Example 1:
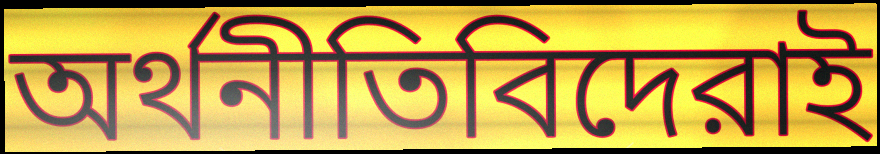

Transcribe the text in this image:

অর্থনীতিবিদেরাই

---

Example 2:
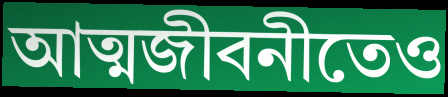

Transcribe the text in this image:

আত্মজীবনীতেও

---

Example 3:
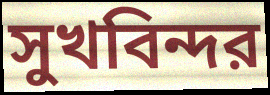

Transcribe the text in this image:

সুখবিন্দর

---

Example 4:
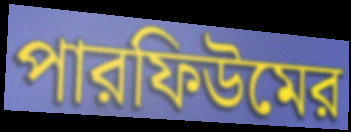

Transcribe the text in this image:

পারফিউমের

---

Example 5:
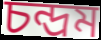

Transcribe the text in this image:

চন্দ্রম